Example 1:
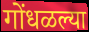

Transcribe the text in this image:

गोंधळल्या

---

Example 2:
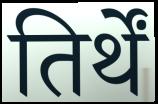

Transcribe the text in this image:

तिर्थें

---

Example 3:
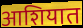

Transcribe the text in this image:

आशियात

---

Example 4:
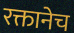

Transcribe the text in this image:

रक्तानेच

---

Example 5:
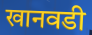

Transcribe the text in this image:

खानवडी